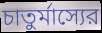
চাতুর্মাস্যের